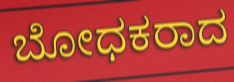
ಬೋಧಕರಾದ